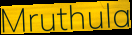
Mruthula